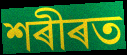
শৰীৰত